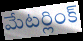
మేటర్లింక్